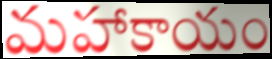
మహాకాయం